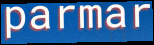
parmar